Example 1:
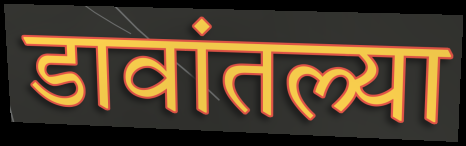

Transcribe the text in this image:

डावांतल्या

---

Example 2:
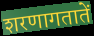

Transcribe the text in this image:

शरणागतातें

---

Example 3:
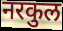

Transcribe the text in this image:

नरकुल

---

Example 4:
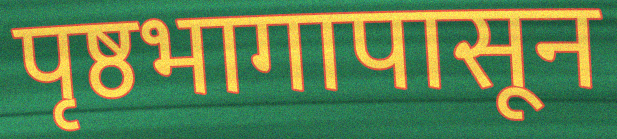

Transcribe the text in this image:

पृष्ठभागापासून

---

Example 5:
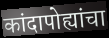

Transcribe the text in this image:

कांदापोह्यांचा